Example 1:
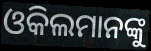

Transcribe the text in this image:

ଓକିଲମାନଙ୍କୁ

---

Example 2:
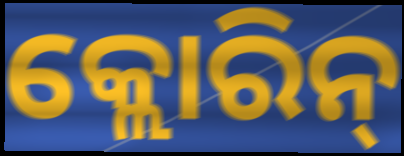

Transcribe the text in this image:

କ୍ଲୋରିନ୍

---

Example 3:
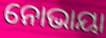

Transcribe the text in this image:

ନୋଭାୟା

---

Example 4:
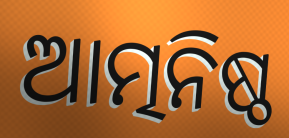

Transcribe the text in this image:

ଆତ୍ମନିଷ୍ଠ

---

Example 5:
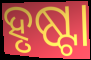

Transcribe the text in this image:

ହୃଷ୍ଟା